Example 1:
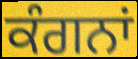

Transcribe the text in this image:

ਕੰਗਨਾਂ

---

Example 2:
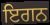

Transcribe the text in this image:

ਇਗਨ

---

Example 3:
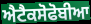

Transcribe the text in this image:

ਐਟੈਕਸੋਫੋਬੀਆ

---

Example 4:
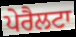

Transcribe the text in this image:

ਪੇਰੈਲਟਾ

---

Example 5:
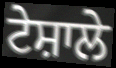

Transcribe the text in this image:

ਟੇਸ਼ਾਲੇ